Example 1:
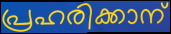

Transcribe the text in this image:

പ്രഹരിക്കാന്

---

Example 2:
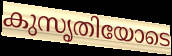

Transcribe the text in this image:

കുസൃതിയോടെ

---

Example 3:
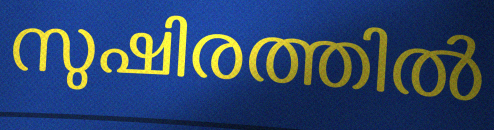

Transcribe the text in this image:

സുഷിരത്തിൽ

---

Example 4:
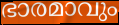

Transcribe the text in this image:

ഭാരമാവും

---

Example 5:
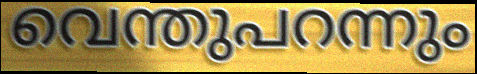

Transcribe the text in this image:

വെന്തുപറന്നും